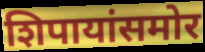
शिपायांसमोर